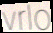
vrlo